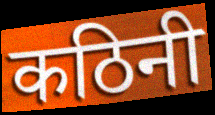
कठिनी